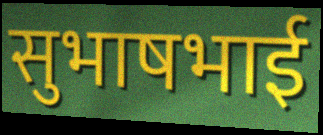
सुभाषभाई